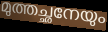
മുത്തച്ഛനേയും